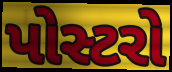
પોસ્ટરો